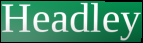
Headley